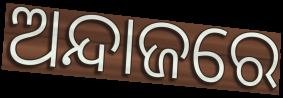
ଅନ୍ଦାଜରେ